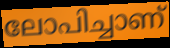
ലോപിച്ചാണ്